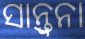
ସାନ୍ତ୍ୱନା